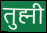
तुह्मी